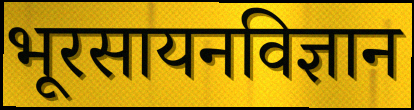
भूरसायनविज्ञान